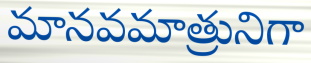
మానవమాత్రునిగా